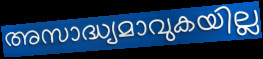
അസാദ്ധ്യമാവുകയില്ല